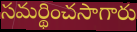
సమర్థించసాగారు